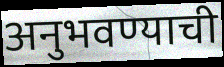
अनुभवण्याची